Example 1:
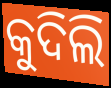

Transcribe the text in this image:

କୁଦିଲି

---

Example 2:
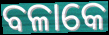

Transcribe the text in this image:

ବଳାକେ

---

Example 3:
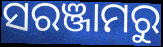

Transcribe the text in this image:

ସରଞ୍ଜାମରୁ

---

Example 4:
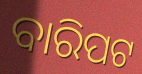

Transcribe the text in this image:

ବାରିପଟ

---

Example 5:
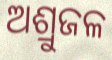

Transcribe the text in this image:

ଅଶ୍ରୁଜଳ